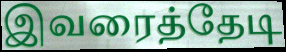
இவரைத்தேடி